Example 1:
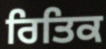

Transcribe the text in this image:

ਰਿਤਿਕ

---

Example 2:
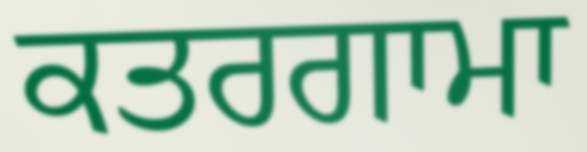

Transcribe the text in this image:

ਕਤਰਗਾਮਾ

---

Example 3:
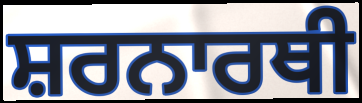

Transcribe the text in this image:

ਸ਼ਰਨਾਰਥੀ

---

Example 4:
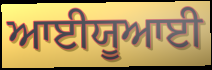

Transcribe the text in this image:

ਆਈਯੂਆਈ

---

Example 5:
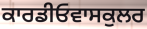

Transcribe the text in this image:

ਕਾਰਡੀਓਵਾਸਕੁਲਰ